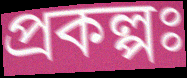
প্ৰকল্পঃ